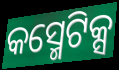
କସ୍ମେଟିକ୍ସ